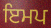
ਇਮਪ